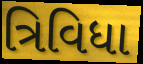
ત્રિવિધા